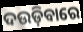
ଦଉଡ଼ିବାରେ